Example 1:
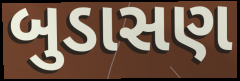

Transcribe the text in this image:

બુડાસણ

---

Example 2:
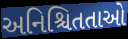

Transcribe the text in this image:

અનિશ્ચિતતાઓ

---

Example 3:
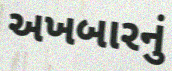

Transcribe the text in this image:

અખબારનું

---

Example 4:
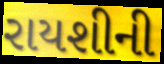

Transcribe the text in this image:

રાયશીની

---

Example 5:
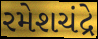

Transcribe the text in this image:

રમેશચંદ્રે